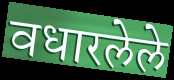
वधारलेले